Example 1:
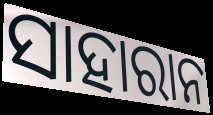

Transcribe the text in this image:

ସାହାରାନ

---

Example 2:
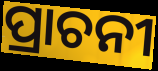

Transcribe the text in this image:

ପ୍ରାଚନୀ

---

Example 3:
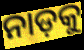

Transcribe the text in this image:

ନାଡ଼କୁ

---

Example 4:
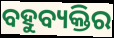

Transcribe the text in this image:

ବହୁବ୍ୟକ୍ତିର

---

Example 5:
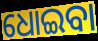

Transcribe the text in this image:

ଧୋଇବା